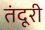
तंदूरी